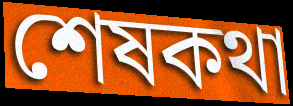
শেষকথা